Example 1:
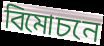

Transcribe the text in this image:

বিমোচনে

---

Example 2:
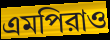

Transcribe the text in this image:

এমপিরাও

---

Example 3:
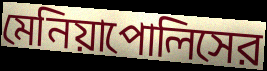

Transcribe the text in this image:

মেনিয়াপোলিসের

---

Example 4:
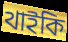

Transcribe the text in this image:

থাইকি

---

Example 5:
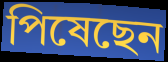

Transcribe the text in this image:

পিষেছেন